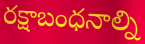
రక్షాబంధనాల్ని